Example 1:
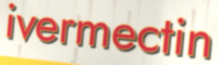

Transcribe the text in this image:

ivermectin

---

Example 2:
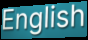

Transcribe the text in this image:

English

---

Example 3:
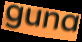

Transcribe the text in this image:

guna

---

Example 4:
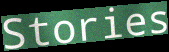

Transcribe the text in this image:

Stories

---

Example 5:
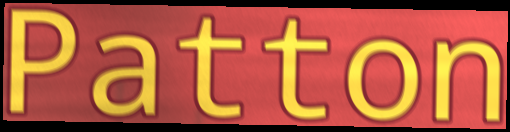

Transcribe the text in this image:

Patton